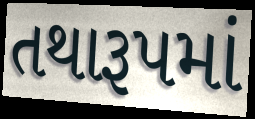
તથારૂપમાં